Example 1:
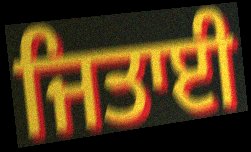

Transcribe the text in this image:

ਜਿਤਾਈ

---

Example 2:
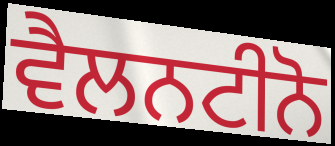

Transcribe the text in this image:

ਵੈਲਨਟੀਨੋ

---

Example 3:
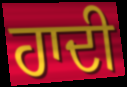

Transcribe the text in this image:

ਹਾਦੀ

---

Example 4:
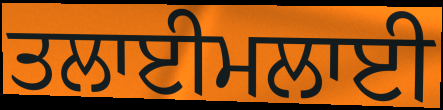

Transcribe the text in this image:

ਤਲਾਈਮਲਾਈ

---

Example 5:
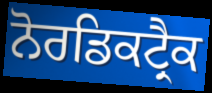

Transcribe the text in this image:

ਨੋਰਡਿਕਟ੍ਰੈਕ